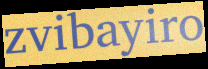
zvibayiro